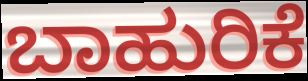
ಬಾಹುರಿಕೆ